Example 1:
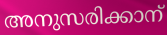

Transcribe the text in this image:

അനുസരിക്കാന്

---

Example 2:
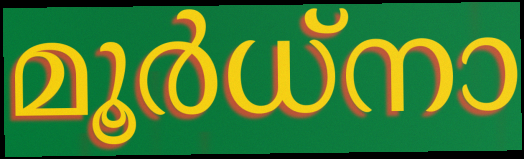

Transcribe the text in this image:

മൂർധ്നാ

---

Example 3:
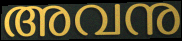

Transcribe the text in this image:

അവനു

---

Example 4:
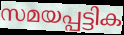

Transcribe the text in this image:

സമയപ്പട്ടിക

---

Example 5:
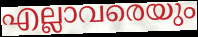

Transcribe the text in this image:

എല്ലാവരെയും